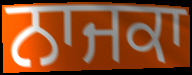
ਨਾਜਕਾ